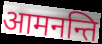
आमनन्ति